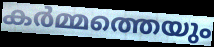
കർമ്മത്തെയും